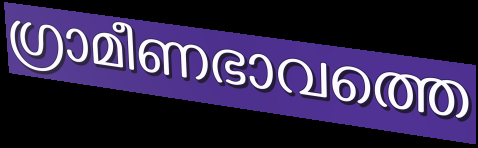
ഗ്രാമീണഭാവത്തെ